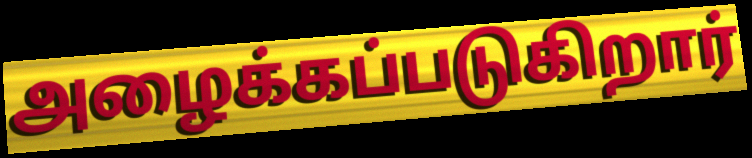
அழைக்கப்படுகிறார்